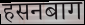
हसनबाग